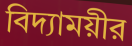
বিদ্যাময়ীর